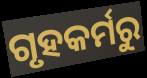
ଗୃହକର୍ମରୁ